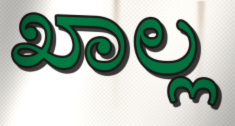
ಖಾಲ್ಲ